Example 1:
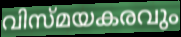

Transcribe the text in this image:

വിസ്മയകരവും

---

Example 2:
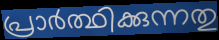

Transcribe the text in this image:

പ്രാർത്ഥിക്കുന്നതു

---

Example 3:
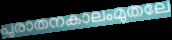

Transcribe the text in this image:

പുരാതനകാലംമുതലേ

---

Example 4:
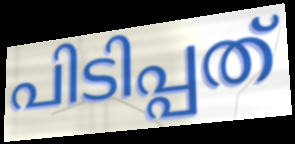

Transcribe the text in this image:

പിടിപ്പത്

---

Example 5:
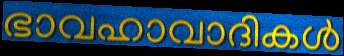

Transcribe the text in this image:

ഭാവഹാവാദികൾ